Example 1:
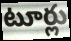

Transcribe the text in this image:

టూర్లు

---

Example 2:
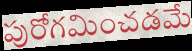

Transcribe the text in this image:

పురోగమించడమే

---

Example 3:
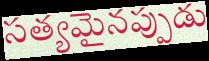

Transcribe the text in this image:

సత్యమైనప్పుడు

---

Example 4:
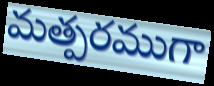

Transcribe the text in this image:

మత్పరముగా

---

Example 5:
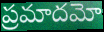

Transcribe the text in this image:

ప్రమాదమో